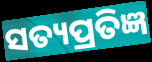
ସତ୍ୟପ୍ରତିଜ୍ଞ